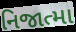
નિજાત્મા